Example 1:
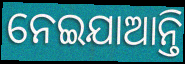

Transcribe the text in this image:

ନେଇଯାଆନ୍ତି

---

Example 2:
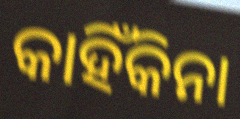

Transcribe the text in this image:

କାହିଁକିନା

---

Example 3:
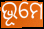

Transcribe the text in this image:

ଭୂମେ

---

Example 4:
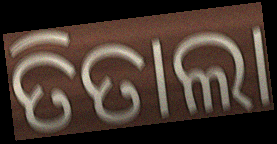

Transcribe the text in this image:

ତିତାଲା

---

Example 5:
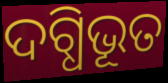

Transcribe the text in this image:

ଦଗ୍ଧିଭୂତ